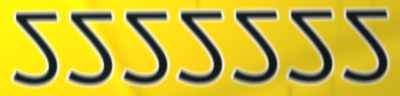
ऽऽऽऽऽऽऽ